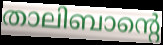
താലിബാന്റെ